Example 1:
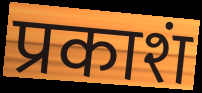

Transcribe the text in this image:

प्रकाशं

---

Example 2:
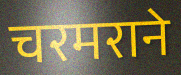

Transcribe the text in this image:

चरमराने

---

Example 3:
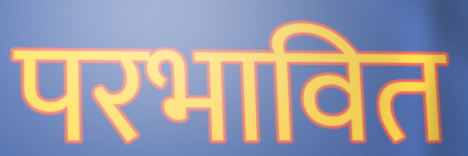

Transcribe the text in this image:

परभावित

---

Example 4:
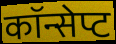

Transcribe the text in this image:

कॉन्‍सेप्‍ट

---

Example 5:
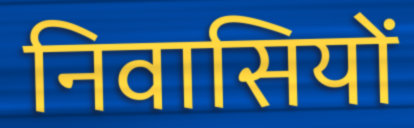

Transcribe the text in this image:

निवासियों